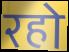
रहो